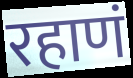
रहाणं